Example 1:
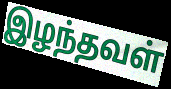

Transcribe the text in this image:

இழந்தவள்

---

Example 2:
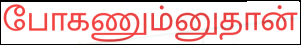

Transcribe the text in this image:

போகணும்னுதான்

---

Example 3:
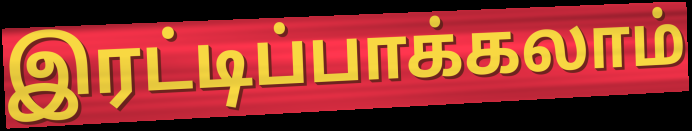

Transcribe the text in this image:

இரட்டிப்பாக்கலாம்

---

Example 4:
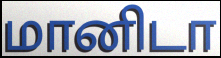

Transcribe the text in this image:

மானிடா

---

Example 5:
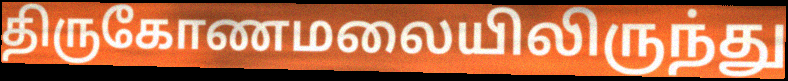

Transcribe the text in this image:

திருகோணமலையிலிருந்து